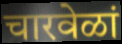
चारवेळां